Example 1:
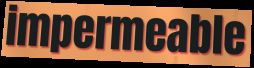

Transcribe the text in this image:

impermeable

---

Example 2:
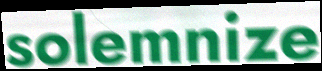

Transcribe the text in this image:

solemnize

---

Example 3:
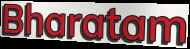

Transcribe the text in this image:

Bharatam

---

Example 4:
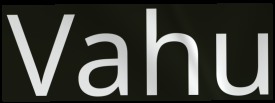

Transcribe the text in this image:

Vahu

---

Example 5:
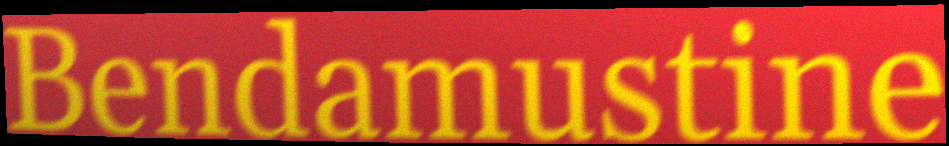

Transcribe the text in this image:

Bendamustine